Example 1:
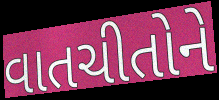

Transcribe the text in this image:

વાતચીતોને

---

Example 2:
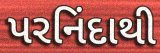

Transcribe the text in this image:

પરનિંદાથી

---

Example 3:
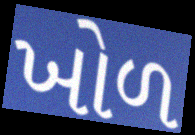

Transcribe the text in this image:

ખોળ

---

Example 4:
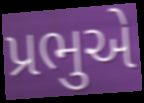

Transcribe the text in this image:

પ્રભુએ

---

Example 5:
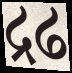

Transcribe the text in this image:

દ્રઢ